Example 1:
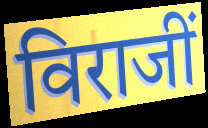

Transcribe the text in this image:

विराजीं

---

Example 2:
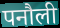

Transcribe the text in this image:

पनौली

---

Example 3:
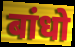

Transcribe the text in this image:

बांधो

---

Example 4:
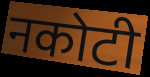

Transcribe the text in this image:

नकोटी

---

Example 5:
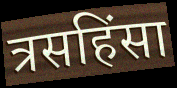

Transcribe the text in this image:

त्रसहिंसा